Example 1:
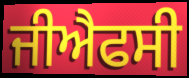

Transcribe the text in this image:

ਜੀਐਫਸੀ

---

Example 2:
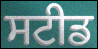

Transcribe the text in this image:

ਸਟੀਡ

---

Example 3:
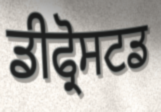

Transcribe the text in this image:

ਡੀਫ੍ਰੋਸਟਡ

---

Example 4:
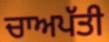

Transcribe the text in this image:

ਚਾਅਪੱਤੀ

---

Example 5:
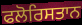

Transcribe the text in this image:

ਫਲੋਰਿਸਤਾਨ